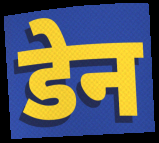
डेन